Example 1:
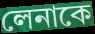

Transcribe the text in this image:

লেনাকে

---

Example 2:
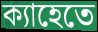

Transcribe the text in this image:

ক্যাহেতে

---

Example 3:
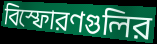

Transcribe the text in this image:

বিস্ফোরণগুলির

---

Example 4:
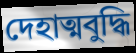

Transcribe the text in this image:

দেহাত্মবুদ্ধি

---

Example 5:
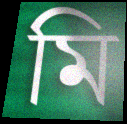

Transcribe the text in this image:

মি